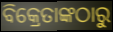
ବିକ୍ରେତାଙ୍କଠାରୁ